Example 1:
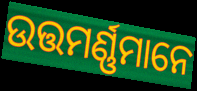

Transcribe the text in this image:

ଉତ୍ତମର୍ଣ୍ଣମାନେ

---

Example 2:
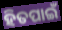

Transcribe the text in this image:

ହିତପାଇଁ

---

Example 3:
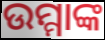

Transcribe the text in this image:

ଉମ୍ମାଙ୍କ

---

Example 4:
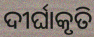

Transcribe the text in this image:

ଦୀର୍ଘାକୃତି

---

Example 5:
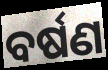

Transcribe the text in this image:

ବର୍ଷଣ